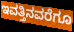
ಇವತ್ತಿನವರೆಗೂ